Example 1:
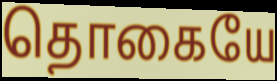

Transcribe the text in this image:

தொகையே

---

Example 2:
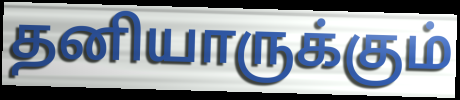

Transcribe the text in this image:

தனியாருக்கும்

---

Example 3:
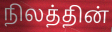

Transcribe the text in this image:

நிலத்தின்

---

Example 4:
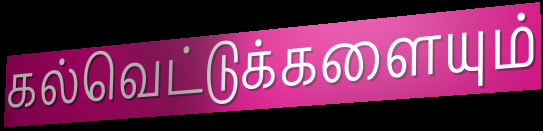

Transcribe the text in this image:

கல்வெட்டுக்களையும்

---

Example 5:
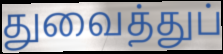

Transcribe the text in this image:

துவைத்துப்